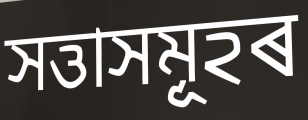
সত্তাসমূহৰ